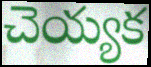
చెయ్యక